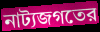
নাট্যজগতের